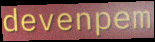
devenpem